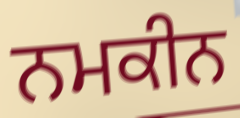
ਨਮਕੀਨ